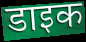
डाइक